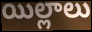
యిల్లాలు